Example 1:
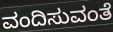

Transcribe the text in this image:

ವಂದಿಸುವಂತೆ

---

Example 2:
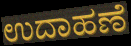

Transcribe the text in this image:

ಉದಾಹಣೆ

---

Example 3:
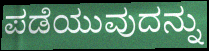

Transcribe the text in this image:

ಪಡೆಯುವುದನ್ನು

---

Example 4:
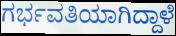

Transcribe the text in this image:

ಗರ್ಭವತಿಯಾಗಿದ್ದಾಳೆ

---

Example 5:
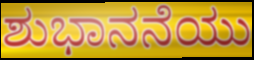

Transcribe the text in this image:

ಶುಭಾನನೆಯು